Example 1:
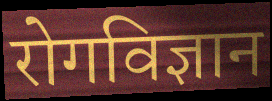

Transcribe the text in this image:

रोगविज्ञान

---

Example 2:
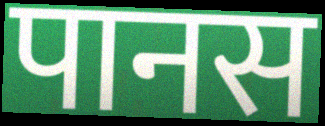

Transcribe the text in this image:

पानस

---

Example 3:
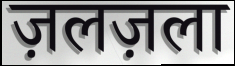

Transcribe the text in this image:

ज़लज़ला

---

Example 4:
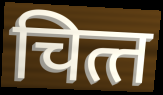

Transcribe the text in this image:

चित्‍त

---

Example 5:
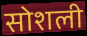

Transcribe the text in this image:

सोशली